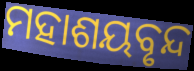
ମହାଶୟବୃନ୍ଦ